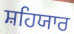
ਸ਼ਹਿਯਾਰ